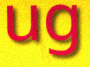
ug